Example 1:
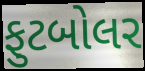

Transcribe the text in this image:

ફુટબોલર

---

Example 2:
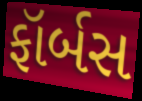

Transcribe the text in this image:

ફૉર્બસ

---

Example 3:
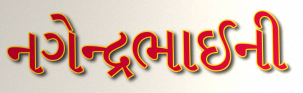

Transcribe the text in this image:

નગેન્દ્રભાઈની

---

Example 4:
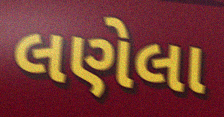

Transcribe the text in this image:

લણેલા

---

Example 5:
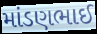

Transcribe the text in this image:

માંડણભાઈ